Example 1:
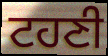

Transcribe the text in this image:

ਟਹਣੀ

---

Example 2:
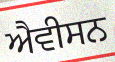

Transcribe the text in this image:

ਐਵੀਸਨ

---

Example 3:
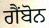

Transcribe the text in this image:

ਗੈਂਬੋਨ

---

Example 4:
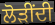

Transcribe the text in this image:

ਲੋੜੀਂਦੀ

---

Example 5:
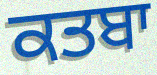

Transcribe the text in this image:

ਕਤਬਾ